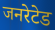
जनरेटेड